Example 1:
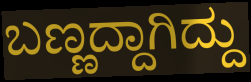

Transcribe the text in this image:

ಬಣ್ಣದ್ದಾಗಿದ್ದು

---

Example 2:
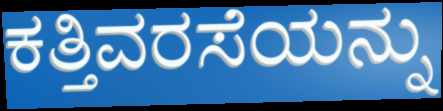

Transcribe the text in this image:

ಕತ್ತಿವರಸೆಯನ್ನು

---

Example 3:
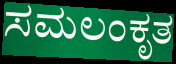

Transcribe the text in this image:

ಸಮಲಂಕೃತ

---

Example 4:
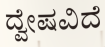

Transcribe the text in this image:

ದ್ವೇಷವಿದೆ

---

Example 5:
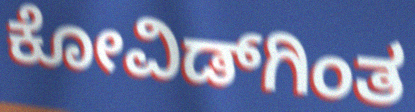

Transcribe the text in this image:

ಕೋವಿಡ್‌ಗಿಂತ